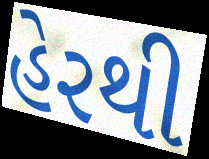
હેરથી